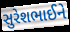
સુરેશભાઈને